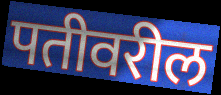
पतीवरील